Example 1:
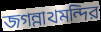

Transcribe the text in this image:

জগন্নাথমন্দির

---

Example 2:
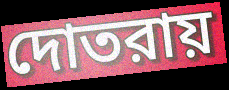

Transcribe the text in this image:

দোতরায়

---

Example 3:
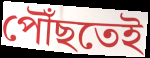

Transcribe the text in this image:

পৌঁছতেই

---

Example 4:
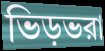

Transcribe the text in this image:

ভিড়ভরা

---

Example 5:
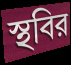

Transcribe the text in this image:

স্থবির